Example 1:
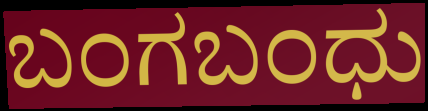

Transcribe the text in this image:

ಬಂಗಬಂಧು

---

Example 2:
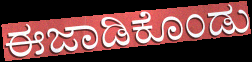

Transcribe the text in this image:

ಈಜಾಡಿಕೊಂಡು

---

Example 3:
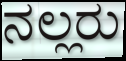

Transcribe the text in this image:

ನಲ್ಲರು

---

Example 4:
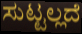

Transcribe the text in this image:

ಸುಟ್ಟಲ್ಲದೆ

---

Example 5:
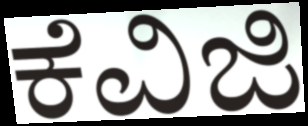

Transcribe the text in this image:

ಕೆವಿಜಿ